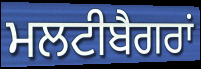
ਮਲਟੀਬੈਗਰਾਂ